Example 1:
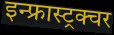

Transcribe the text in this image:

इन्फ्रास्ट्रक्‍चर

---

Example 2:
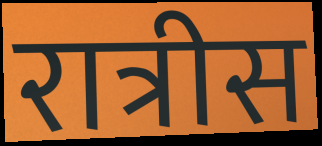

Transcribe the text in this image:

रात्रीस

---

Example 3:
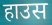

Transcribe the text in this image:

हाउस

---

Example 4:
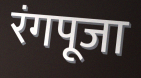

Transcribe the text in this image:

रंगपूजा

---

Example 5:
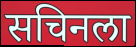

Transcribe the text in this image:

सचिनला